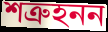
শত্রুহনন